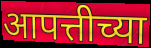
आपत्तीच्या